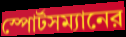
স্পোর্টসম্যানের